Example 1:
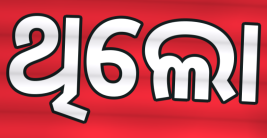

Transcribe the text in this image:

ଥିଲୋ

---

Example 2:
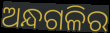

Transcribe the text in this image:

ଅନ୍ଧଗଳିର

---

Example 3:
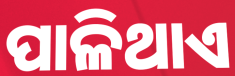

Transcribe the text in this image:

ପାଳିଥାଏ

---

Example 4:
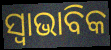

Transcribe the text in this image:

ସ୍ଵାଭାବିକ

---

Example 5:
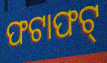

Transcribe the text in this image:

ଫଟାଫଟ୍